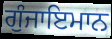
ਗੁੰਜਾਇਮਾਨ